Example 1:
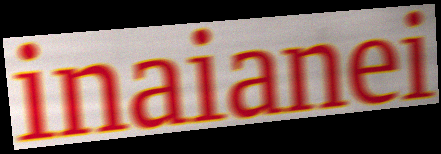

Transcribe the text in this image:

inaianei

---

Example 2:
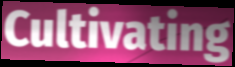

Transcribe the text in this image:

Cultivating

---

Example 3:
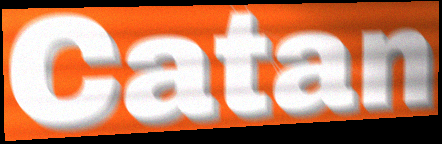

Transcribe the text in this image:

Catan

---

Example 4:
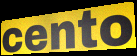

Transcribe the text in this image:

cento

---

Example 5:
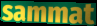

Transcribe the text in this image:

sammat